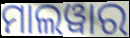
ମାଲୱାର